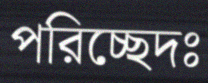
পরিচ্ছেদঃ